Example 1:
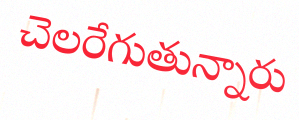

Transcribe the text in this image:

చెలరేగుతున్నారు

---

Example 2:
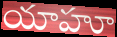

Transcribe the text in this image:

యాహూ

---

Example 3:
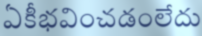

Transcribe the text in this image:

ఏకీభవించడంలేదు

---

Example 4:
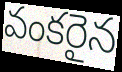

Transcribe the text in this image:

వంకరైన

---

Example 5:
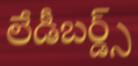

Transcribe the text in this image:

లేడీబర్డ్స్